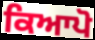
ਕਿਆਪੋ